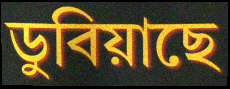
ডুবিয়াছে